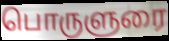
பொருளுரை